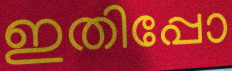
ഇതിപ്പോ